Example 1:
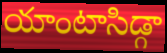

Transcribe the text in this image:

యాంటాసిడ్గా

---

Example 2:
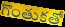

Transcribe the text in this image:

గొంతుకతో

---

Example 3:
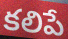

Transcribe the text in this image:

కలిపే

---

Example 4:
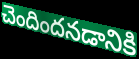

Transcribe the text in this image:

చెందిందనడానికి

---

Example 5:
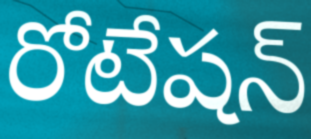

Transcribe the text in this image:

రోటేషన్